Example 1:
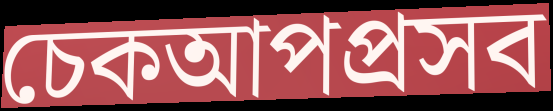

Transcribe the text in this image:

চেকআপপ্রসব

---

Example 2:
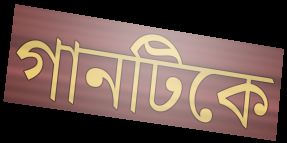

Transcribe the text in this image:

গানটিকে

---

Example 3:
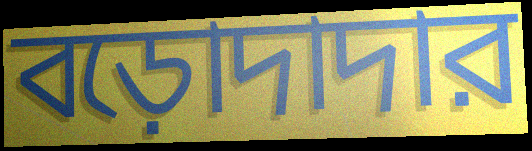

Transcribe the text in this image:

বড়োদাদার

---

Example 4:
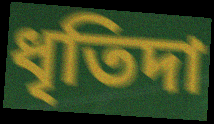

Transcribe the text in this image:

ধৃতিদা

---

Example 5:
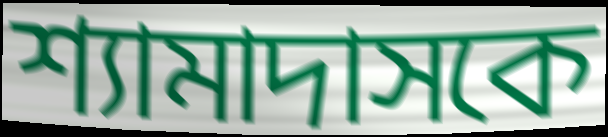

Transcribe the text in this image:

শ্যামাদাসকে